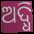
ଅଦ୍ଧି